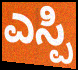
ಎಸ್ಪಿ